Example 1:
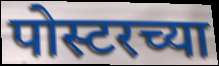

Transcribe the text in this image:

पोस्टरच्या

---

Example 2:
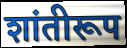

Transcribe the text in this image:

शांतीरूप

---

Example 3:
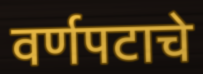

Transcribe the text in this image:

वर्णपटाचे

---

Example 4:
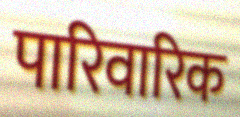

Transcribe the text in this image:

पारिवारिक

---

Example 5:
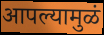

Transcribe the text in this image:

आपल्यामुळं